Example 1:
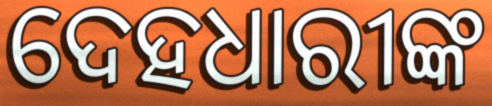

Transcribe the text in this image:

ଦେହଧାରୀଙ୍କ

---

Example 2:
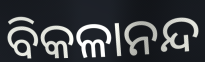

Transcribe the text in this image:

ବିକଳାନନ୍ଦ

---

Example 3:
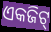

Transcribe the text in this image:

ଏକଜିଟ୍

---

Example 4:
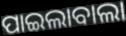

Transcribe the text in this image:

ପାଇଲାବାଲା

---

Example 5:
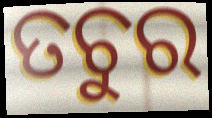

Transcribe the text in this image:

ତଚୁର